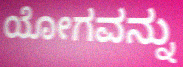
ಯೋಗವನ್ನು